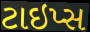
ટાઇપ્સ